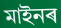
মাইনৰ